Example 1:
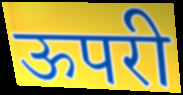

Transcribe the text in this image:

ऊपरी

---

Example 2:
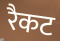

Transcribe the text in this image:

रैकट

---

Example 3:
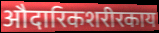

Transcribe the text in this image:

औदारिकशरीरकाय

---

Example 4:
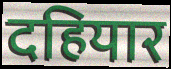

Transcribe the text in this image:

दहियार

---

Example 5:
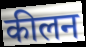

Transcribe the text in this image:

कीलन